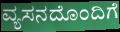
ವ್ಯಸನದೊಂದಿಗೆ